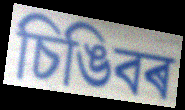
চিঙিবৰ